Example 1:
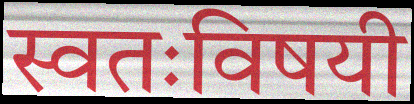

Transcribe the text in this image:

स्वतःविषयी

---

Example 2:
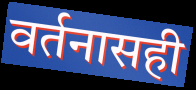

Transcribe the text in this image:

वर्तनासही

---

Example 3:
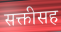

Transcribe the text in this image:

सक्तीसह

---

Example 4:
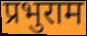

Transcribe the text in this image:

प्रभुराम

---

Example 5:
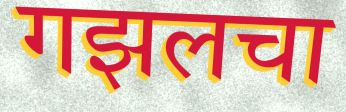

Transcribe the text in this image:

गझलचा